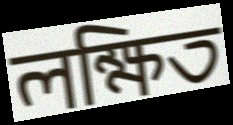
লক্ষিত